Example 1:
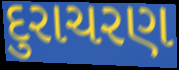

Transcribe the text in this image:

દુરાચરણ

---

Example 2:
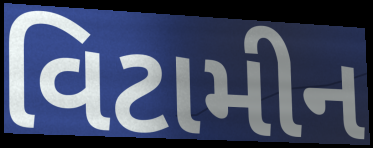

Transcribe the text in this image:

વિટામીન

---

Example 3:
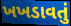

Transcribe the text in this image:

ખખડાવતું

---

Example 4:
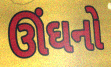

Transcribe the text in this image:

ઊંઘનો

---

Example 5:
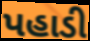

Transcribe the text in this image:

પહાડી